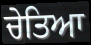
ਚੇਤਿਆ